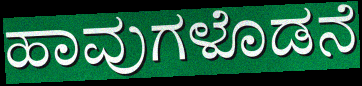
ಹಾವುಗಳೊಡನೆ